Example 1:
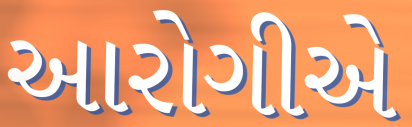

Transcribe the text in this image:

આરોગીએ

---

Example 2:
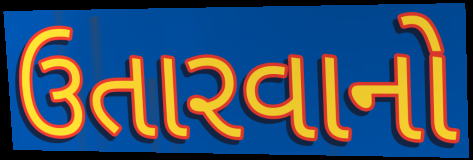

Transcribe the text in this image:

ઉતારવાનો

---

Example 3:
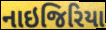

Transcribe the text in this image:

નાઇજિરિયા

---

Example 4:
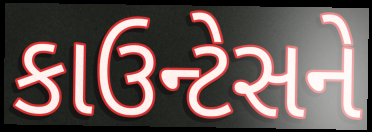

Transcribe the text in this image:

કાઉન્ટેસને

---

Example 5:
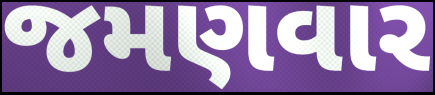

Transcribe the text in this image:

જમણવાર